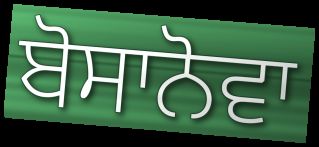
ਬੋਸਾਨੋਵਾ